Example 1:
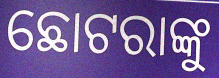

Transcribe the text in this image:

ଛୋଟରାଙ୍କୁ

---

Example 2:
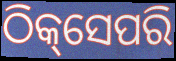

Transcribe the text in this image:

ଠିକ୍‌ସେପରି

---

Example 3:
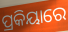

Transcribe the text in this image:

ପ୍ରକିୟାରେ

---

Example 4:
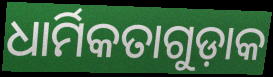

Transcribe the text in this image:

ଧାର୍ମିକତାଗୁଡ଼ାକ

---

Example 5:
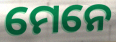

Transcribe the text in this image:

ମେନେ